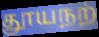
தூயநற்